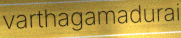
varthagamadurai